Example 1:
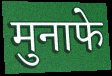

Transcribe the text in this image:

मुनाफे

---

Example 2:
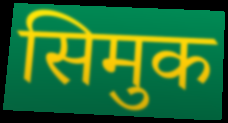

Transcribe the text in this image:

सिमुक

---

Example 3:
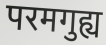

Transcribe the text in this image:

परमगुह्य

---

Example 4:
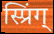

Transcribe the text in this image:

स्प्रिंग्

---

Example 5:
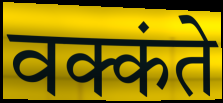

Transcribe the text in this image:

वक्कंते